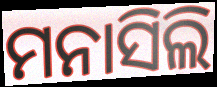
ମନାସିଲି